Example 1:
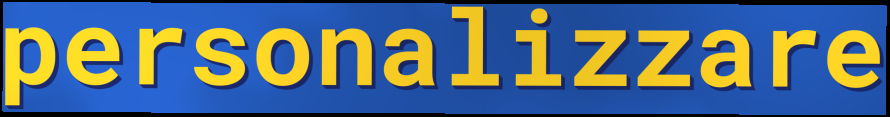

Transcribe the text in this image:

personalizzare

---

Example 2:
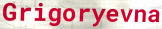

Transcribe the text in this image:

Grigoryevna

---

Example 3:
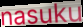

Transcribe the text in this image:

nasuku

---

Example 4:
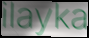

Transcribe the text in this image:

ilayka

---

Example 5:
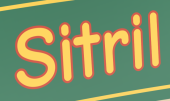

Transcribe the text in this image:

Sitril